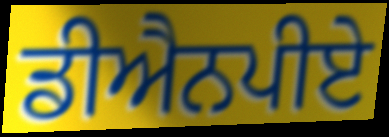
ਡੀਐਨਪੀਏ